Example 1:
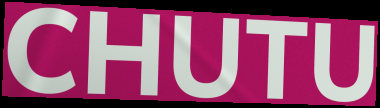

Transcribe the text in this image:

CHUTU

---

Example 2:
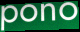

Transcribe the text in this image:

pono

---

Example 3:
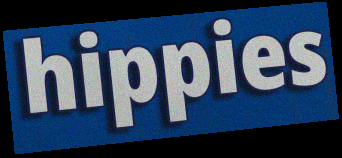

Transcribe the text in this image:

hippies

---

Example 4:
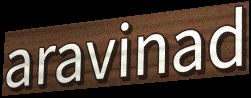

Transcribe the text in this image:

aravinad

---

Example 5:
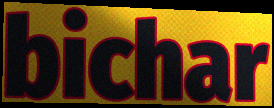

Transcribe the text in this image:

bichar